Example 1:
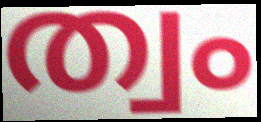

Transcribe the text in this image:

ത്വം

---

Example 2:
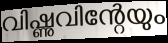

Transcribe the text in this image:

വിഷ്ണുവിന്റേയും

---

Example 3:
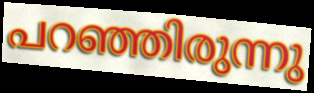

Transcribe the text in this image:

പറഞ്ഞിരുന്നു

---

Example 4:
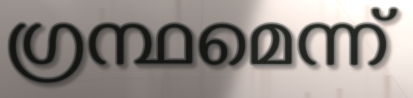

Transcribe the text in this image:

ഗ്രന്ഥമെന്ന്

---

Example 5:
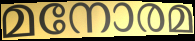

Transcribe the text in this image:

മനോരമ